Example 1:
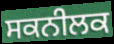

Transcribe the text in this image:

ਸਕਨੀਲਕ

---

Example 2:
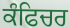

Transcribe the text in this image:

ਕੰਫਿਚਰ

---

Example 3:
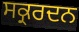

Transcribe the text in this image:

ਸਕ੍ਰਰਦਨ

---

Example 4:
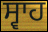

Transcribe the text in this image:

ਸ੍ਵਾਹ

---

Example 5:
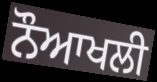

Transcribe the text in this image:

ਨੌਆਖਲੀ